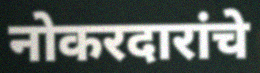
नोकरदारांचे